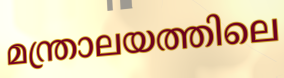
മന്ത്രാലയത്തിലെ